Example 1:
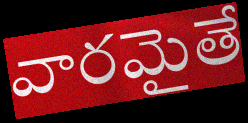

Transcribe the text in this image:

వారమైతే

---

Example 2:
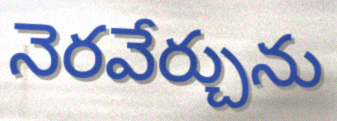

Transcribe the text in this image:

నెరవేర్చును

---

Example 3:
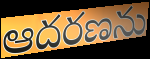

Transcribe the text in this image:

ఆదరణను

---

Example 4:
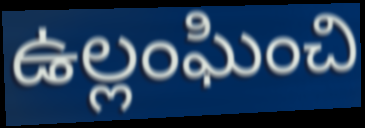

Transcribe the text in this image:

ఉల్లంఘించి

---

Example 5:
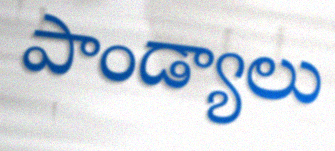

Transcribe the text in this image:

పాండ్యాలు